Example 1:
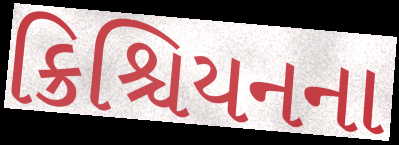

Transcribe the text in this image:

ક્રિશ્ચિયનના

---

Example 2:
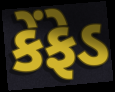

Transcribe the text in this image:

કેંફેડ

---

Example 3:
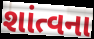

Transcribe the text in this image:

શાંત્વના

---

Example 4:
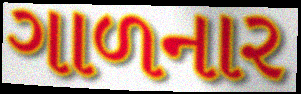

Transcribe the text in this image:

ગાળનાર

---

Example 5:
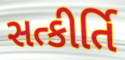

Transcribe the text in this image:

સત્કીર્તિ